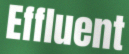
Effluent